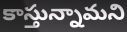
కాస్తున్నామని